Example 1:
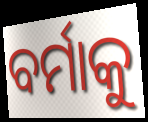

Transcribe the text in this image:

ବର୍ମାକୁ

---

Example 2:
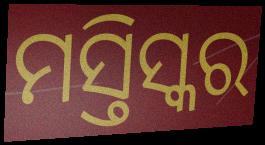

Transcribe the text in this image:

ମସ୍ତିସ୍କର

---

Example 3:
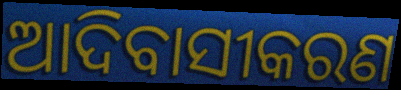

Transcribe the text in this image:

ଆଦିବାସୀକରଣ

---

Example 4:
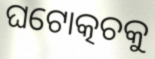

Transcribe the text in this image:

ଘଟୋତ୍କଚକୁ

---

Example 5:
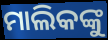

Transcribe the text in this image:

ମାଲିକଙ୍କୁ